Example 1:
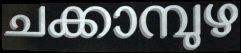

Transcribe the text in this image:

ചക്കാമ്പുഴ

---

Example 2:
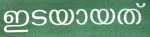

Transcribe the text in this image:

ഇടയായത്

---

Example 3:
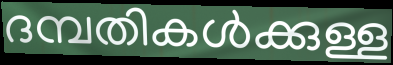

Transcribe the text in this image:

ദമ്പതികൾക്കുള്ള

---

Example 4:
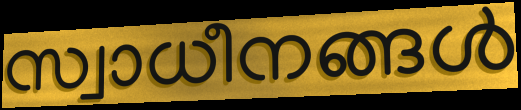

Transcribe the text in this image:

സ്വാധീനങ്ങൾ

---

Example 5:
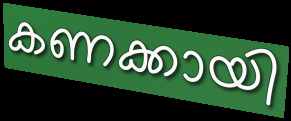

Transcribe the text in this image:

കണക്കായി